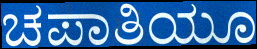
ಚಪಾತಿಯೂ